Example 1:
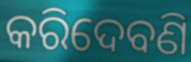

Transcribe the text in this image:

କରିଦେବଣି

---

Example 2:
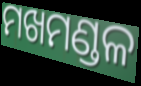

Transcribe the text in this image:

ମଖମଣ୍ଡଳ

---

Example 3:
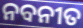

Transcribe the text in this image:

ନବନୀତ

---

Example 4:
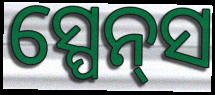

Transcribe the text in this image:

ସ୍ପେନ୍‌ସ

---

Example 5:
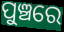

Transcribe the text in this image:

ପୁଞ୍ଚରେ